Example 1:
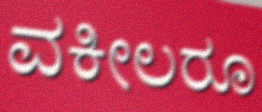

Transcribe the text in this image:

ವಕೀಲರೂ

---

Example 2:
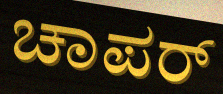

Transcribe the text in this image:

ಚಾಪರ್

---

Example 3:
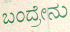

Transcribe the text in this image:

ಬಂದ್ರೇನು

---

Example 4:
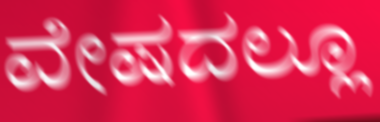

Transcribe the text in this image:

ವೇಷದಲ್ಲೂ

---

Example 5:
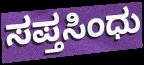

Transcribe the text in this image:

ಸಪ್ತಸಿಂಧು